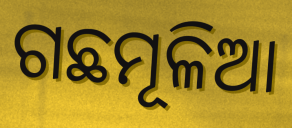
ଗଛମୂଳିଆ